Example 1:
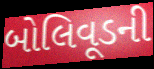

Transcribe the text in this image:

બોલિવૂડની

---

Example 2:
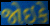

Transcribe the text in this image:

જોઇકે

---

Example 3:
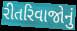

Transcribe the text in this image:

રીતરિવાજોનું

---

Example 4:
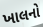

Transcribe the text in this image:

ખાલનો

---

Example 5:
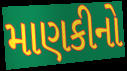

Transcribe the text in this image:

માણકીનો